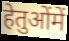
हेतुओंमें